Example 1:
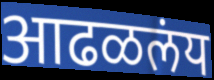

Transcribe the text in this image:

आढळलंय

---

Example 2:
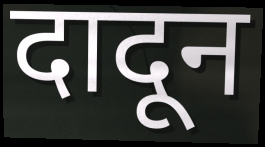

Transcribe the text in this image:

दादून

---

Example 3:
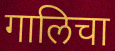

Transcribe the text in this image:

गालिचा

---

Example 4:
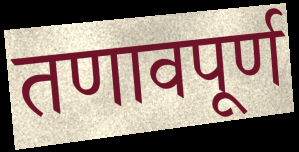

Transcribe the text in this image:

तणावपूर्ण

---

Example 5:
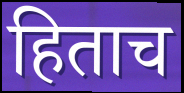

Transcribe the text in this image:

हिताच